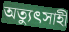
অত্যুৎসাহী